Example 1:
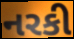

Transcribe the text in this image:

નરકી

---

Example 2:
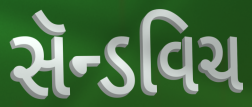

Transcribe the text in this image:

સૅન્ડવિચ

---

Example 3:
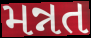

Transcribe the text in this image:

મન્નત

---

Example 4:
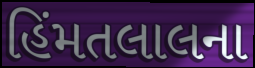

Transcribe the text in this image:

હિંમતલાલના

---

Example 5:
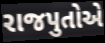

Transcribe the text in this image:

રાજપુતોએ